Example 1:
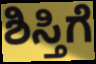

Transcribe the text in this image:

ಶಿಸ್ತಿಗೆ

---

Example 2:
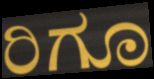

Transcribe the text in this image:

ರಿಗೂ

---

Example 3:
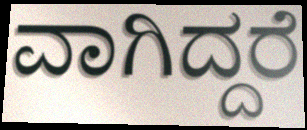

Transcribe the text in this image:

ವಾಗಿದ್ದರೆ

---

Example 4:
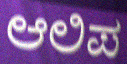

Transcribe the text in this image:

ಆಲಿಪ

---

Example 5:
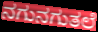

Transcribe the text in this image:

ನಗುನಗುತಲೆ